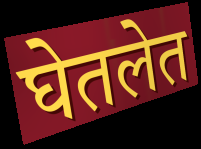
घेतलेत